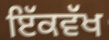
ਇੱਕਵੱਖ